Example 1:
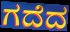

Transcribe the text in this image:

ಗದೆದ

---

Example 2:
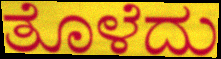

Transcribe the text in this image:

ತೊಳೆದು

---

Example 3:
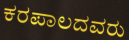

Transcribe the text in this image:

ಕರಪಾಲದವರು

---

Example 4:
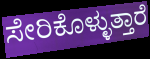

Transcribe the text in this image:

ಸೇರಿಕೊಳ್ಳುತ್ತಾರೆ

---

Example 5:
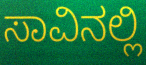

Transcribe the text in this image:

ಸಾವಿನಲ್ಲಿ